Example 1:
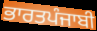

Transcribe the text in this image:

ਭਾਰਤਪੰਜਾਬੀ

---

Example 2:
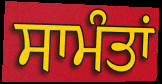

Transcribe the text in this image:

ਸਾਮੰਤਾਂ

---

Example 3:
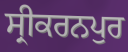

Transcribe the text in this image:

ਸ੍ਰੀਕਰਨਪੁਰ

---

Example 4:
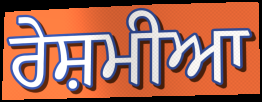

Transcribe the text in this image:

ਰੇਸ਼ਮੀਆ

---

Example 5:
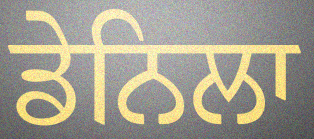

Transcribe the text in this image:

ਡੇਨਿਲਾ